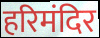
हरिमंदिर